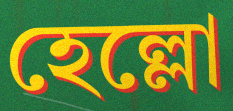
হেল্লো